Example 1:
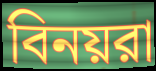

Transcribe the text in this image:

বিনয়রা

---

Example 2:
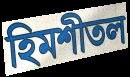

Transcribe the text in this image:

হিমশীতল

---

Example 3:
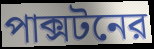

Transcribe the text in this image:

পাক্সটনের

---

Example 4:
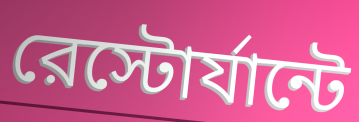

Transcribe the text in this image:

রেস্টোর্যান্টে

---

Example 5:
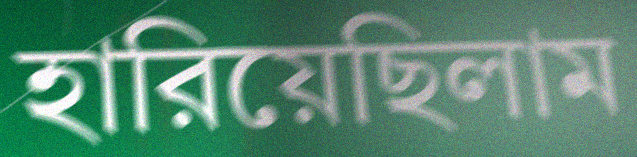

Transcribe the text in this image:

হারিয়েছিলাম